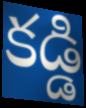
కడ్డి